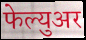
फेल्युअर